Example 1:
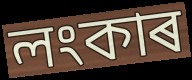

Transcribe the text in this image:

লংকাৰ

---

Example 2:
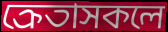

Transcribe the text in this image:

ক্ৰেতাসকলে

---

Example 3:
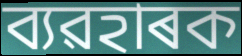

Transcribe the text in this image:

ব্যৱহাৰক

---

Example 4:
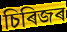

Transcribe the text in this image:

চিৰিজৰ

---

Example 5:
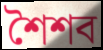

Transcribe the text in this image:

শৈশব